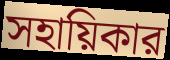
সহায়িকার